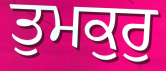
ਤੁਮਕੁਰੁ